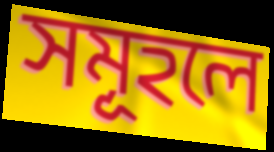
সমূহলে